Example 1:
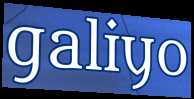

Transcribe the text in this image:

galiyo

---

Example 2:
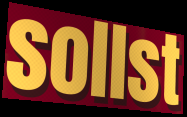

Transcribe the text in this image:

sollst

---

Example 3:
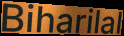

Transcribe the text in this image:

Biharilal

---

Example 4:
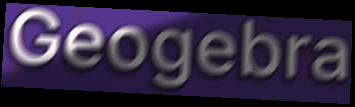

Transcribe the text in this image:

Geogebra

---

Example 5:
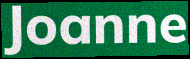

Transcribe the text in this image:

Joanne